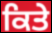
ਕਿਤੇ